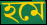
হমে